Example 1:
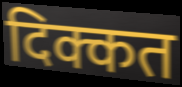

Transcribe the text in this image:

दिक्कत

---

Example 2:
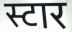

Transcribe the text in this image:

स्टार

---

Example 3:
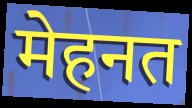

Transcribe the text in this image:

मेहनत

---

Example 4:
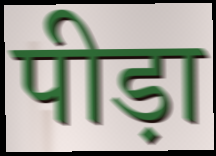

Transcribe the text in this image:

पीड़ा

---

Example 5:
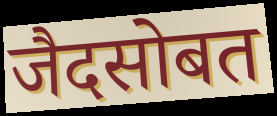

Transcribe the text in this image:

जैदसोबत